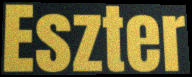
Eszter